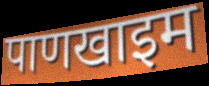
पाणखाइम